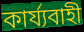
কাৰ্য্যবাহী